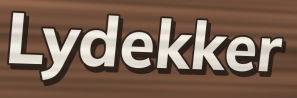
Lydekker